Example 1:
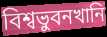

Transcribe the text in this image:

বিশ্বভুবনখানি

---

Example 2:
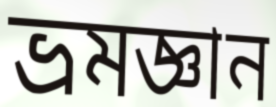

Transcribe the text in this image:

ভ্রমজ্ঞান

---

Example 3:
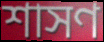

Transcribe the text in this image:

শাসণ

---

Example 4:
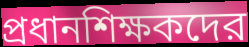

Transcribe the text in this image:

প্রধানশিক্ষকদের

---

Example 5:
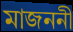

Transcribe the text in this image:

মাজননী